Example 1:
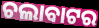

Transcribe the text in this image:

ଚଲାବାଟର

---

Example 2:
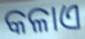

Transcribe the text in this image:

କଳାଏ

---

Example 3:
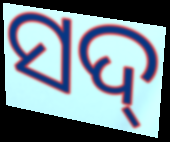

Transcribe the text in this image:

ସଦ୍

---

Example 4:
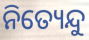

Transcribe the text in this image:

ନିତ୍ୟେନ୍ଦୁ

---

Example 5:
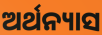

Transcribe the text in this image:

ଅର୍ଥନ୍ୟାସ